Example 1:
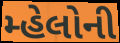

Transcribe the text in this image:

મ્હેલોની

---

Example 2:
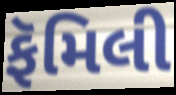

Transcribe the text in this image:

ફૅમિલી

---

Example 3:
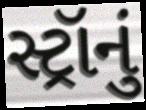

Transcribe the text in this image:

સ્ટ્રૉનું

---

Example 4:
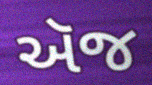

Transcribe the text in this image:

ઍજ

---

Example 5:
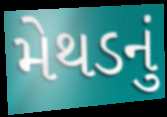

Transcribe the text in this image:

મેથડનું